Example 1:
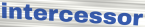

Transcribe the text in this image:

intercessor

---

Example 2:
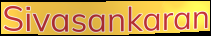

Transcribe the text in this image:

Sivasankaran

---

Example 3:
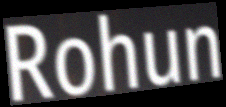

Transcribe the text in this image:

Rohun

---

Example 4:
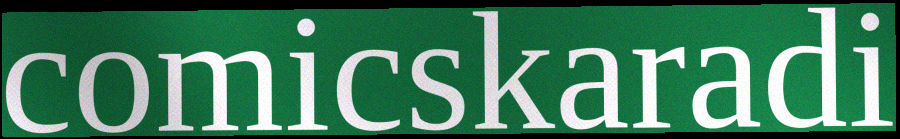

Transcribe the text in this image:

comicskaradi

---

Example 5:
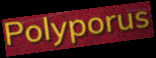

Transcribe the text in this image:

Polyporus